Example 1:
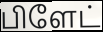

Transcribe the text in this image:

பிளேட்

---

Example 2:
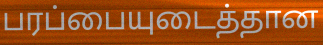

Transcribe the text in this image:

பரப்பையுடைத்தான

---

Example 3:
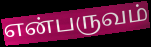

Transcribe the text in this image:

என்பருவம்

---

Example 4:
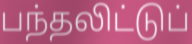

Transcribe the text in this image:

பந்தலிட்டுப்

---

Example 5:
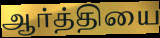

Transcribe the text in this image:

ஆர்த்தியை